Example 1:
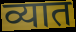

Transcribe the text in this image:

व्यात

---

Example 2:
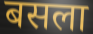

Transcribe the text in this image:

बसला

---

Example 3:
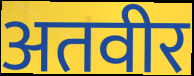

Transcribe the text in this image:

अतवीर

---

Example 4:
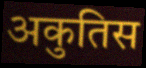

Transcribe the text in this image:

अकुतिस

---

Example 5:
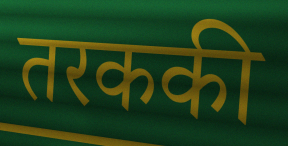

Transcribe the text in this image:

तरककी